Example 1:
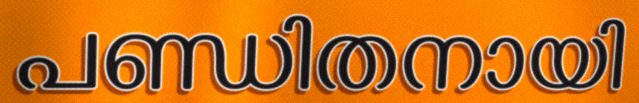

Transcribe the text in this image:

പണ്ഡിതനായി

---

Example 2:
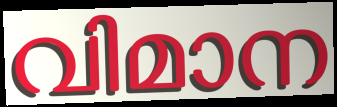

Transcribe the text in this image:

വിമാന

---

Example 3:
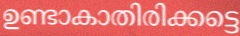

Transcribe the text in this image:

ഉണ്ടാകാതിരിക്കട്ടെ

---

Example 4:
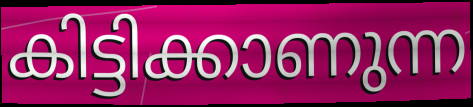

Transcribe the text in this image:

കിട്ടിക്കാണുന്ന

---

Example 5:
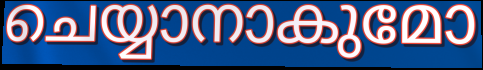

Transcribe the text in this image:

ചെയ്യാനാകുമോ